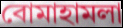
বোমাহামলা